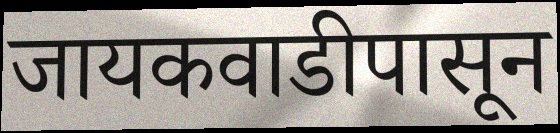
जायकवाडीपासून